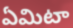
ఏమిటా